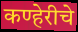
कण्हेरीचे